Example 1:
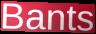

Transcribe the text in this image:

Bants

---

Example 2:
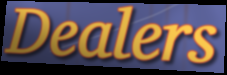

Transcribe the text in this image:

Dealers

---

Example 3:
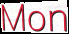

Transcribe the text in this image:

Mon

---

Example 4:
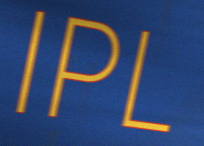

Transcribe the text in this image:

IPL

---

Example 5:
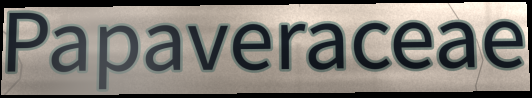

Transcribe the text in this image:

Papaveraceae